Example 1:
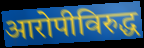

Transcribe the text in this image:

आरोपीविरुद्ध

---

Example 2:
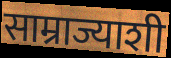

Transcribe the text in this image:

साम्राज्याशी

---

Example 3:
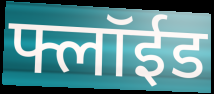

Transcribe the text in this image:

फ्लॉईड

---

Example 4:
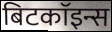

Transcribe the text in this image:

बिटकॉइन्स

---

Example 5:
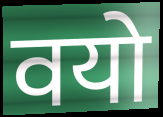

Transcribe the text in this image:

वयो